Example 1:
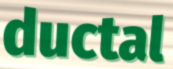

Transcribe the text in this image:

ductal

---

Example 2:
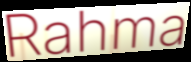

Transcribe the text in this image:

Rahma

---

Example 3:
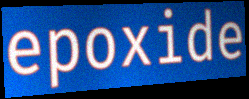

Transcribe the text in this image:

epoxide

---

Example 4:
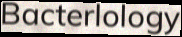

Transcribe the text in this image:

Bacterlology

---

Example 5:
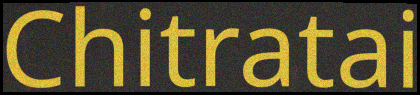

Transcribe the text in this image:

Chitratai